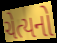
ચેત્યનો